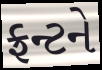
ફ્રન્ટને